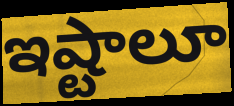
ఇష్టాలూ